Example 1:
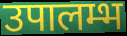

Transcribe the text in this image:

उपालम्भ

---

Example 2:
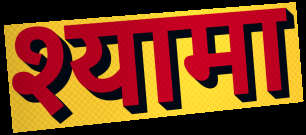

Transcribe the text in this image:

श्यामा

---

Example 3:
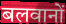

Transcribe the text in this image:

बलवानों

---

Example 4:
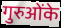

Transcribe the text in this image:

गुरुओंके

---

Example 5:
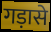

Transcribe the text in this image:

गड़ासे